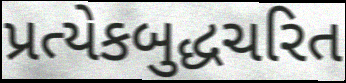
પ્રત્યેકબુદ્ધચરિત